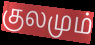
குலமும்